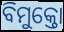
ବିମୁକ୍ତୋ